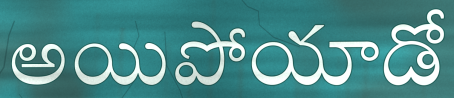
అయిపోయాడో